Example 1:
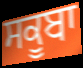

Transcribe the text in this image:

ਸਕੂਬਾ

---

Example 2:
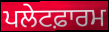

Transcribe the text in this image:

ਪਲੇਟਫ਼ਾਰਮ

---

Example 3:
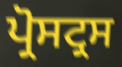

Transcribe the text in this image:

ਪ੍ਰੋਸਟ੍ਰਸ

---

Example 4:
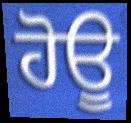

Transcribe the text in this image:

ਹੋਊ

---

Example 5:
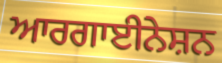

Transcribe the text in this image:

ਆਰਗਾਈਨੇਸ਼ਨ